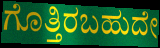
ಗೊತ್ತಿರಬಹುದೇ